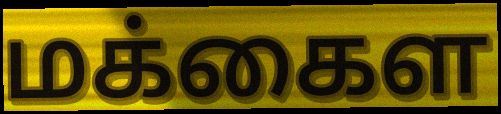
மக்கைள